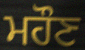
ਮਹੌਣ